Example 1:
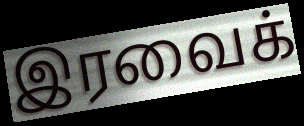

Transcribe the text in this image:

இரவைக்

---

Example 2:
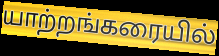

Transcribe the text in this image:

யாற்றங்கரையில்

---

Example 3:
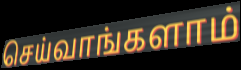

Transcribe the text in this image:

செய்வாங்களாம்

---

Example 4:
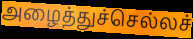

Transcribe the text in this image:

அழைத்துச்செல்லச்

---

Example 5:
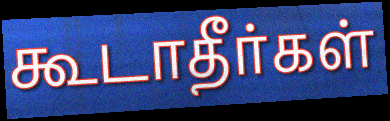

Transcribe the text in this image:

கூடாதீர்கள்